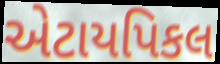
એટાયપિકલ